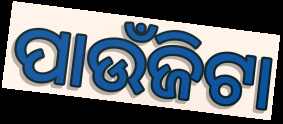
ପାଉଁଜିଟା